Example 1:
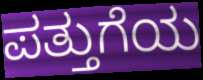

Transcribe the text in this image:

ಪತ್ತುಗೆಯ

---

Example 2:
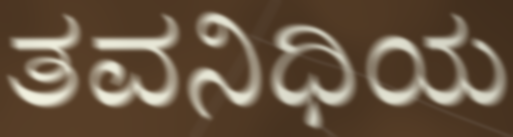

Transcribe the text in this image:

ತವನಿಧಿಯ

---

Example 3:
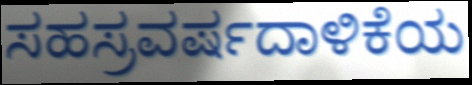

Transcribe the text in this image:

ಸಹಸ್ರವರ್ಷದಾಳಿಕೆಯ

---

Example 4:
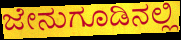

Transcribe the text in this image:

ಜೇನುಗೂಡಿನಲ್ಲಿ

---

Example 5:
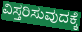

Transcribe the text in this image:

ವಿಸ್ತರಿಸುವುದಕ್ಕೆ